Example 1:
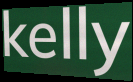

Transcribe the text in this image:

kelly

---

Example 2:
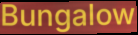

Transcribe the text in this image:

Bungalow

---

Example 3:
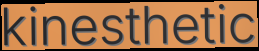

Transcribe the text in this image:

kinesthetic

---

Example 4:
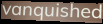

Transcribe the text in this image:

vanquished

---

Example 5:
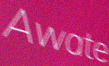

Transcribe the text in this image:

Awate